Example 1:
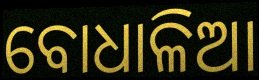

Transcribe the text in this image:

ବୋଧାଳିଆ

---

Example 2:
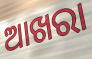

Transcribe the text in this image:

ଆଖରା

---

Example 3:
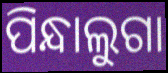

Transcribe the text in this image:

ପିନ୍ଧାଲୁଗା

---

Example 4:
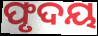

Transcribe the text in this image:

ଫୃଦୟ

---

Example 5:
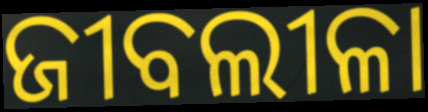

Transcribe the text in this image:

ଜୀବଲୀଳା